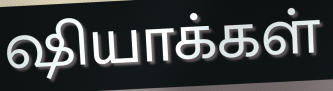
ஷியாக்கள்